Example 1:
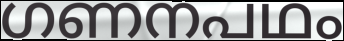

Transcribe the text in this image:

ഗണനപഥം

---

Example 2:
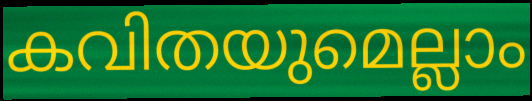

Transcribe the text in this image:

കവിതയുമെല്ലാം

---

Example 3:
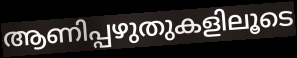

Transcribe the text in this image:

ആണിപ്പഴുതുകളിലൂടെ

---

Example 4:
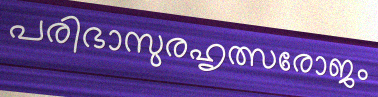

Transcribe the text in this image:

പരിഭാസുരഹൃത്സരോജം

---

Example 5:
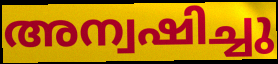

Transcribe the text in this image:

അന്വഷിച്ചു